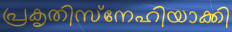
പ്രകൃതിസ്‌നേഹിയാക്കി